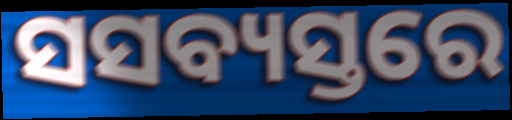
ସସବ୍ୟସ୍ତରେ